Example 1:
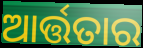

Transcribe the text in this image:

ଆର୍ତ୍ତତାର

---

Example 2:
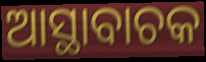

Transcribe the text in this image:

ଆସ୍ଥାବାଚକ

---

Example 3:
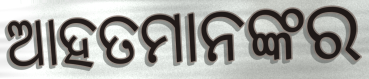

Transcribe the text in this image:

ଆହତମାନଙ୍କର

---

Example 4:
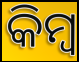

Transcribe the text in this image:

କିମ୍ବ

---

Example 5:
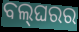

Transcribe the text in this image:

ବଲ୍‌ଘରର